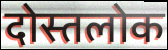
दोस्तलोक